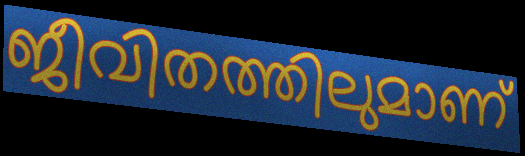
ജീവിതത്തിലുമാണ്